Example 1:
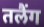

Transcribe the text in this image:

तलैंग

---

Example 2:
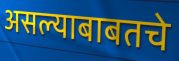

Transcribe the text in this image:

असल्याबाबतचे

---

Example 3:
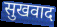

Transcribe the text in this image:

सुखवाद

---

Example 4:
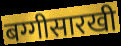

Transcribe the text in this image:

बग्गीसारखी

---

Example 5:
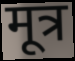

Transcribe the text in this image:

मूत्र